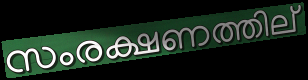
സംരക്ഷണത്തില്